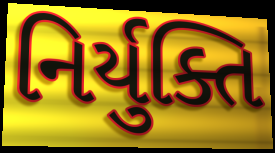
નિર્યુક્તિ